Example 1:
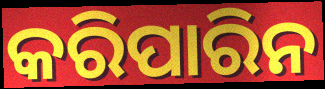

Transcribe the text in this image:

କରିପାରିନ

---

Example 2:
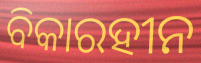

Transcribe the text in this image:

ବିକାରହୀନ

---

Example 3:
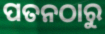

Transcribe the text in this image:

ପତନଠାରୁ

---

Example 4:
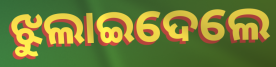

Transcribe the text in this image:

ଝୁଲାଇଦେଲେ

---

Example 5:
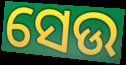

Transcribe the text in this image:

ସେଉ